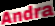
Andra